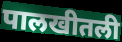
पालखीतली